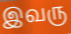
இவரு